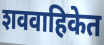
शववाहिकेत